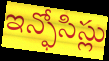
ఇన్ఫోసిస్లు